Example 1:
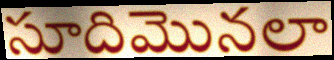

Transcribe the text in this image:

సూదిమొనలా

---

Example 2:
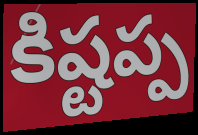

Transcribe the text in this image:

కిష్టప్ప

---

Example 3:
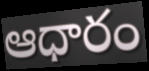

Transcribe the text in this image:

ఆధారం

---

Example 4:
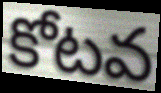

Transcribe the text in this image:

కోటవ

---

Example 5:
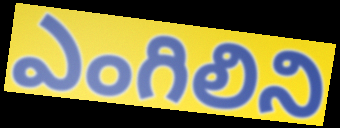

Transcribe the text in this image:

ఎంగిలిని